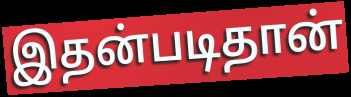
இதன்படிதான்